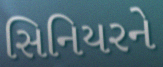
સિનિયરને